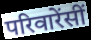
परिवारेंसीं